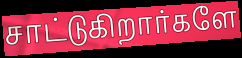
சாட்டுகிறார்களே